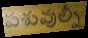
పశువుల్నీ